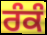
ਰੰਕੰ